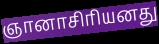
ஞானாசிரியனது